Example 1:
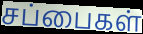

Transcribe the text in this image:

சப்பைகள்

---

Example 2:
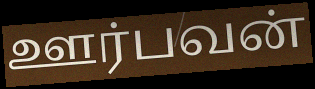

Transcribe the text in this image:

ஊர்பவன்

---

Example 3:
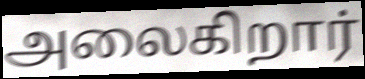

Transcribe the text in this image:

அலைகிறார்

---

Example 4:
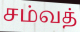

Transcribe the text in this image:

சம்வத்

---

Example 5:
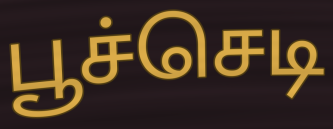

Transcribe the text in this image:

பூச்செடி